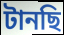
টানছি